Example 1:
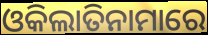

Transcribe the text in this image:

ଓକିଲାତିନାମାରେ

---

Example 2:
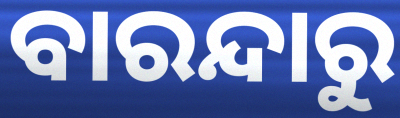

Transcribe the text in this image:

ବାରନ୍ଦାରୁ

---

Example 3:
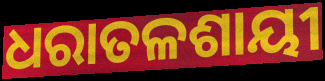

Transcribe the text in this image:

ଧରାତଳଶାୟୀ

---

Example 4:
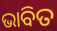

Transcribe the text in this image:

ଭାବିତ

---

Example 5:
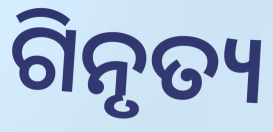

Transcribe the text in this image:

ଗିନୃତ୍ୟ